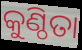
କୁଣ୍ଠିତା